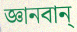
জ্ঞানবান্